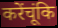
करेंचूंकि